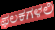
ಫಲಕಗಳಲಿ